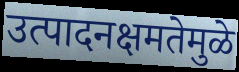
उत्पादनक्षमतेमुळे